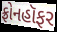
ફ્રોનહૉફર